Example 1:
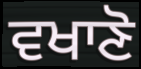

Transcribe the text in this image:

ਵਖਾਣੋ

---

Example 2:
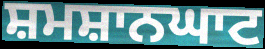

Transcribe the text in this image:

ਸ਼ਮਸ਼ਾਨਘਾਟ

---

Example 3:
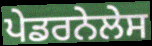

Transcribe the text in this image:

ਪੇਡਰਨੇਲੇਸ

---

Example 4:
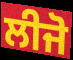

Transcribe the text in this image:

ਲੀਜੋ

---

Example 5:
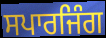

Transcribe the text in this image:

ਸਪਾਰਜਿੰਗ